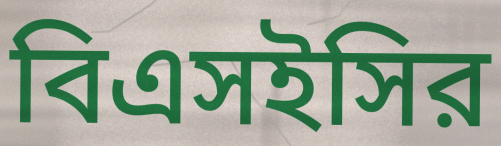
বিএসইসির